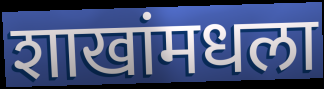
शाखांमधला